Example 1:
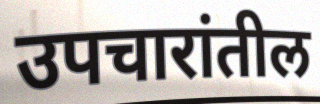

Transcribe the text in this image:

उपचारांतील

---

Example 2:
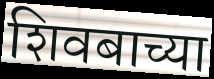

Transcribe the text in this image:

शिवबाच्या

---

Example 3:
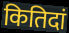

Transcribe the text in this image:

कितिदां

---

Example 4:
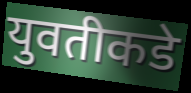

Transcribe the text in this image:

युवतीकडे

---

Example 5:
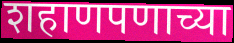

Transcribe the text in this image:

शहाणपणाच्या